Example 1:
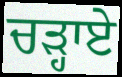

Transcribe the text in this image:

ਚੜ੍ਹਾਏ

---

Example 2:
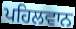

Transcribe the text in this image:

ਪਹਿਲਵਾਨ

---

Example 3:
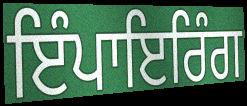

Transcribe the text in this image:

ਇੰਪਾਇਰਿੰਗ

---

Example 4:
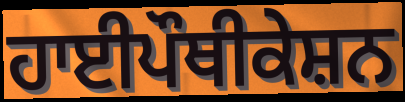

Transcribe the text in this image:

ਹਾਈਪੌਥੀਕੇਸ਼ਨ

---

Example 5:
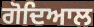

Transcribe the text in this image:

ਗੋਦਿਆਲ